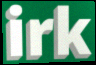
irk